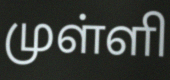
முள்ளி